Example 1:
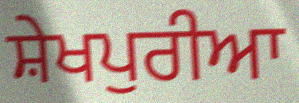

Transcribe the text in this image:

ਸ਼ੇਖਪੁਰੀਆ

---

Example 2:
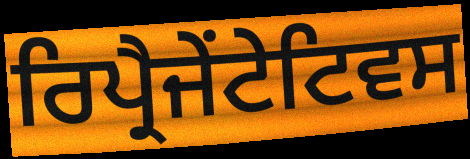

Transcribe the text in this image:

ਰਿਪ੍ਰੈਜੇਂਟੇਟਿਵਸ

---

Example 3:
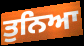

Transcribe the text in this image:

ਤੁਨਿਆ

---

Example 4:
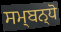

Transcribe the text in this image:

ਸਮ੍ਬਨ੍ਧੋ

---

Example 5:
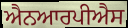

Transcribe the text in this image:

ਐਨਆਰਪੀਐਸ